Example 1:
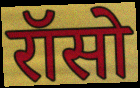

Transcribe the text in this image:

रॉसो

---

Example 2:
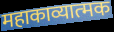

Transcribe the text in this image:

महाकाव्‍यात्‍मक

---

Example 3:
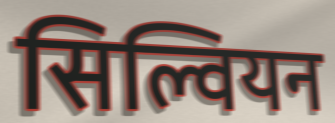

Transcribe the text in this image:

सिल्वियन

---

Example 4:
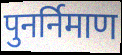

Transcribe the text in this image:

पुनर्निमाण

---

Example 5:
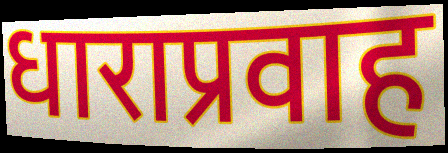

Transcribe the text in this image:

धाराप्रवाह